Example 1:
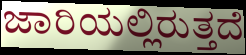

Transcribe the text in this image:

ಜಾರಿಯಲ್ಲಿರುತ್ತದೆ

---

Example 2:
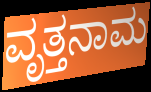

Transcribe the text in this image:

ವೃತ್ತನಾಮ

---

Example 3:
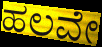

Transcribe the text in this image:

ಹಲವೇ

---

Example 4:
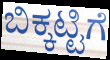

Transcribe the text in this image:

ಬಿಕ್ಕಟ್ಟಿಗೆ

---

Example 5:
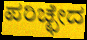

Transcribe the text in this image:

ಪರಿಚ್ಛೇದ